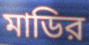
মাডির